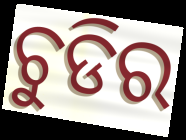
ଚୁଡିର